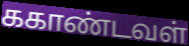
ககாண்டவள்